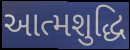
આત્મશુદ્ધિ